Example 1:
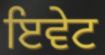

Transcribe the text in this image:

ਇਵੇਟ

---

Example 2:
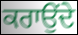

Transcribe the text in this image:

ਕਰਾਉਂਦੇ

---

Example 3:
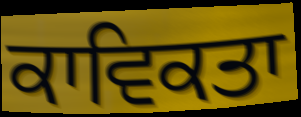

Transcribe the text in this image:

ਕਾਵਿਕਤਾ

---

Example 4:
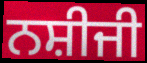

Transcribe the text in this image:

ਨਸ਼ੀਜੀ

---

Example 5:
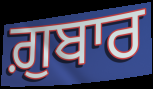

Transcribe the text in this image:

ਗ਼ੁਬਾਰ